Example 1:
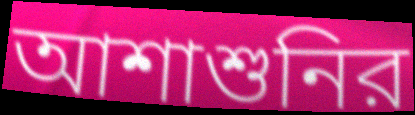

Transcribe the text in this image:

আশাশুনির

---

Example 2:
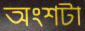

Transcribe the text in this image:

অংশটা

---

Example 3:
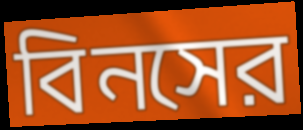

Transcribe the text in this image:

বিনসের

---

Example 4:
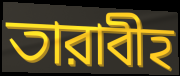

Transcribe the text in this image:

তারাবীহ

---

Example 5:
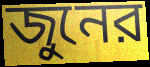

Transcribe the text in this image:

জুনের